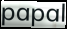
papal